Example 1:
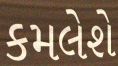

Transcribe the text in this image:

કમલેશે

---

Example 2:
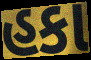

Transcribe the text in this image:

હકા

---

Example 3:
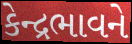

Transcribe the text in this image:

કેન્દ્રભાવને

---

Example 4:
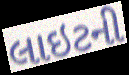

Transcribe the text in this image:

લાઇટની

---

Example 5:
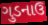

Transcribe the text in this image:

ગુડનાઉ